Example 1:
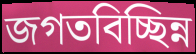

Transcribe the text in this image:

জগতবিচ্ছিন্ন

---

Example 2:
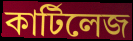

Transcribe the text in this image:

কার্টিলেজ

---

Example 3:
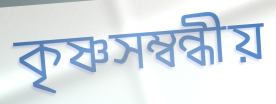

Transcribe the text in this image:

কৃষ্ণসম্বন্ধীয়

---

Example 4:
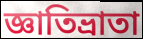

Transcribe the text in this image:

জ্ঞাতিভ্রাতা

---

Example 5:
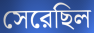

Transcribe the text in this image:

সেরেছিল